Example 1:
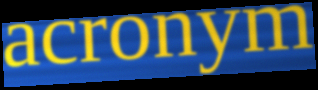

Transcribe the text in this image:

acronym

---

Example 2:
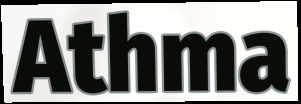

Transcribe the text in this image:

Athma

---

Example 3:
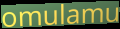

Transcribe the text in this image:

omulamu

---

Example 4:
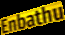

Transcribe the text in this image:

Enbathu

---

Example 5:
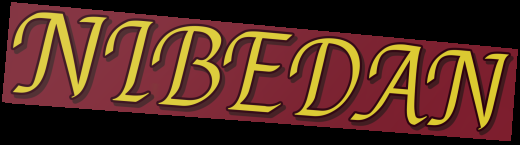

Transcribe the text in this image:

NIBEDAN